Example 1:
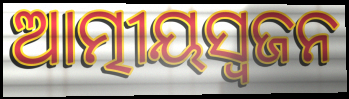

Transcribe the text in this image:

ଆତ୍ମୀୟସ୍ୱଜନ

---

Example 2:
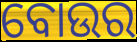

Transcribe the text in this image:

ବୋଉର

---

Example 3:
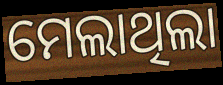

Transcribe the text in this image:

ମେଲାଥିଲା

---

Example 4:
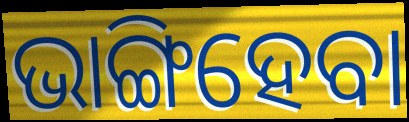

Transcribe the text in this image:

ଭାଙ୍ଗିହେବା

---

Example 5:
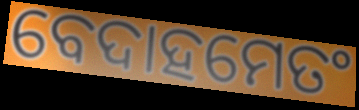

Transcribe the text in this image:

ବେଦାହମେତଂ